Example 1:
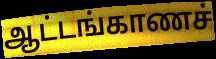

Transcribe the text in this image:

ஆட்டங்காணச்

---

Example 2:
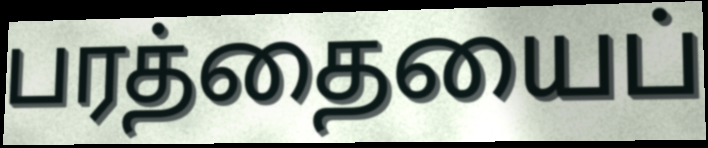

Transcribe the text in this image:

பரத்தையைப்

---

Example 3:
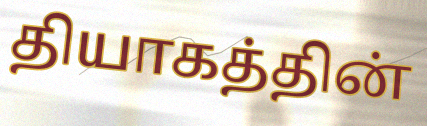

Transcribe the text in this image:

தியாகத்தின்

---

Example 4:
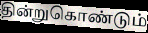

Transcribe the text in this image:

தின்றுகொண்டும்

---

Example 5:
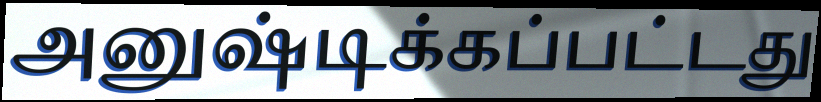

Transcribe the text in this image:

அனுஷ்டிக்கப்பட்டது